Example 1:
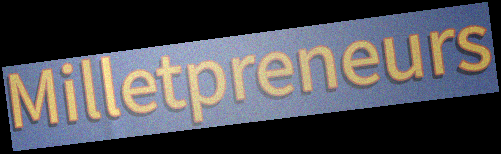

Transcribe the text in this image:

Milletpreneurs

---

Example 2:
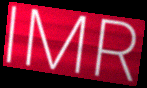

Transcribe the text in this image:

IMR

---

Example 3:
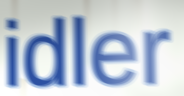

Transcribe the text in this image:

idler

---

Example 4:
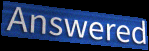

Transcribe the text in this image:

Answered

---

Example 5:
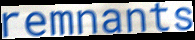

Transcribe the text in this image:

remnants